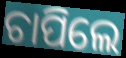
ଚାପିଲେ